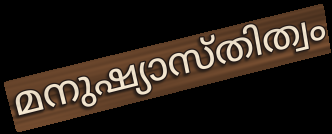
മനുഷ്യാസ്തിത്വം